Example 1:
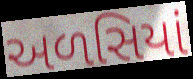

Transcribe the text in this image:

અળસિયાં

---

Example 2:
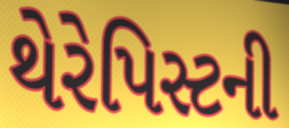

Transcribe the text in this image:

થેરેપિસ્ટની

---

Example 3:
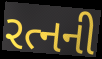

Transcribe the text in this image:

રત્નની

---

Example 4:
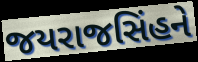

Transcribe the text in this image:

જયરાજસિંહને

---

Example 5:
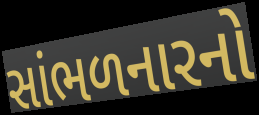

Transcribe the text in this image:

સાંભળનારનો